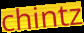
chintz